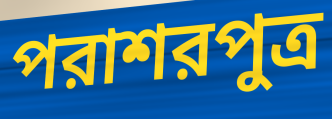
পরাশরপুত্র